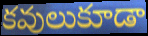
కవులుకూడా